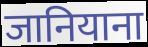
जानियाना